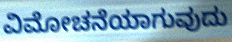
ವಿಮೋಚನೆಯಾಗುವುದು